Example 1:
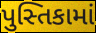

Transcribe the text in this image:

પુસ્તિકામાં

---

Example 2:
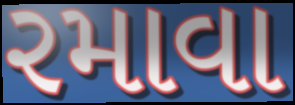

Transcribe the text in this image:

રમાવા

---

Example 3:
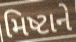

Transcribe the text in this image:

મિષ્ટાને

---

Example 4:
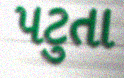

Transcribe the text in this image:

પટુતા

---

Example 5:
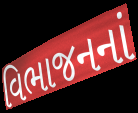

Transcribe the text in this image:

વિભાજનનાં